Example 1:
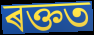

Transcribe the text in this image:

ৰক্তত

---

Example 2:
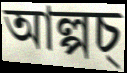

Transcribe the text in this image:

আল্পচ্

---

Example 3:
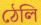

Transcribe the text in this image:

ঠেলি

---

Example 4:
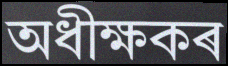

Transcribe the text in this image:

অধীক্ষকৰ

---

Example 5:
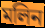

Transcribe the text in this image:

মলিন